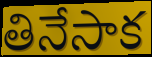
తినేసాక